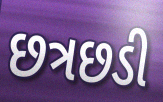
છત્રછડી